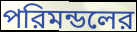
পরিমন্ডলের